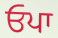
ਓਪਾ